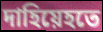
দাহিয়েহতে